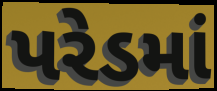
પરેડમાં